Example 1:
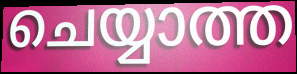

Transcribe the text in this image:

ചെയ്യാത്ത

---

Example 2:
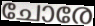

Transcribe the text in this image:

ചോരേ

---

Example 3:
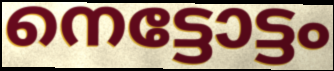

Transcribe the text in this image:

നെട്ടോട്ടം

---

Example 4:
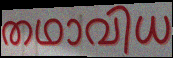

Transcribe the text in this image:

തഥാവിധ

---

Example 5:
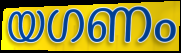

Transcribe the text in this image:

യഗണം